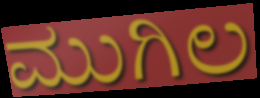
ಮುಗಿಲ